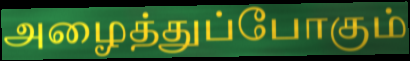
அழைத்துப்போகும்